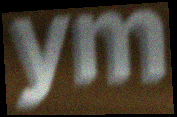
ym